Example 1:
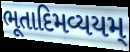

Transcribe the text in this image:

ભૂતાદિમવ્યયમ્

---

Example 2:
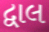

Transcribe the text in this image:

દ્વાલ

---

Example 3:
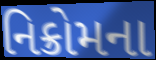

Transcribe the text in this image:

નિક્રોમના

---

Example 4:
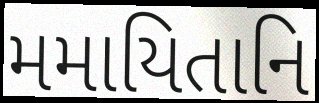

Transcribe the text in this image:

મમાયિતાનિ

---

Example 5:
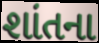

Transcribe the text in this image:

શાંતના